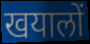
खयालों